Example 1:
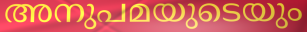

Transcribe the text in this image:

അനുപമയുടെയും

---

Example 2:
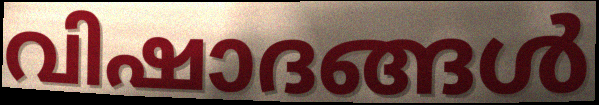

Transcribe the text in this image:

വിഷാദങ്ങൾ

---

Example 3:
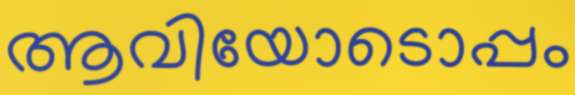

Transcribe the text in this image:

ആവിയോടൊപ്പം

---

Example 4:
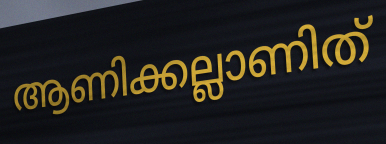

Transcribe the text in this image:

ആണിക്കല്ലാണിത്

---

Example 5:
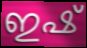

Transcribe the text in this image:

ഇഷ്